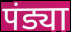
पंड्या